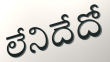
లేనిదేదో